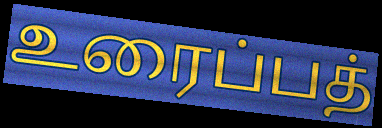
உரைப்பத்